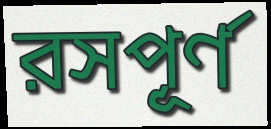
রসপূর্ণ